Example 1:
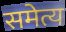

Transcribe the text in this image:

समेत्य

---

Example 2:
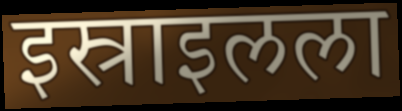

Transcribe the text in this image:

इस्राइलला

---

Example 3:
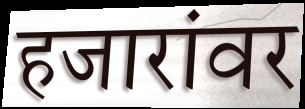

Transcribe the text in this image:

हजारांवर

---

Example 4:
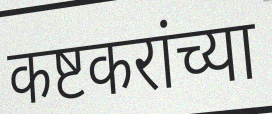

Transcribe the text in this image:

कष्टकरांच्या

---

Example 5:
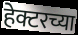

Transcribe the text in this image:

हेक्टरच्या